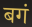
बगं